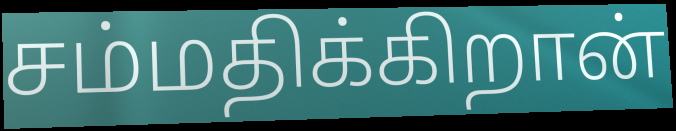
சம்மதிக்கிறான்